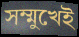
সম্মুখেই